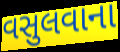
વસુલવાના